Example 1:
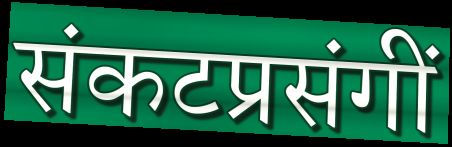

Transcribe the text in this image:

संकटप्रसंगीं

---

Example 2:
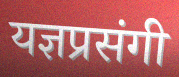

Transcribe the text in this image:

यज्ञप्रसंगी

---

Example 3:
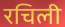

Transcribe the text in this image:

रचिली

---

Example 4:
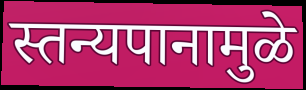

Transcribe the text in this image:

स्तन्यपानामुळे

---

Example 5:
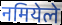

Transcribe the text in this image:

नमियेले